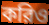
করিও